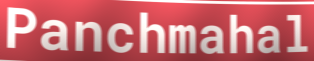
Panchmahal